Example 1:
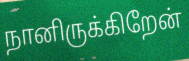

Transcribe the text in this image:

நானிருக்கிறேன்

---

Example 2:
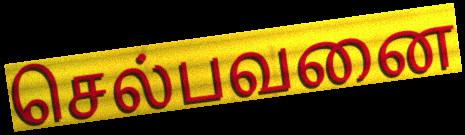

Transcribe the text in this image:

செல்பவனை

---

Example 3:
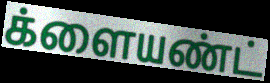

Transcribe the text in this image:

க்ளையண்ட்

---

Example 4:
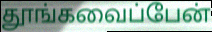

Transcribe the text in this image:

தூங்கவைப்பேன்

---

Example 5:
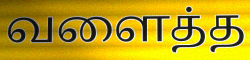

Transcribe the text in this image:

வளைத்த